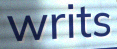
writs